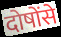
दोषोंसे